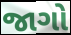
જાગો